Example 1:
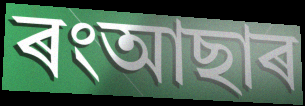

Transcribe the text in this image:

ৰংআছাৰ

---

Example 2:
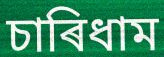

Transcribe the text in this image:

চাৰিধাম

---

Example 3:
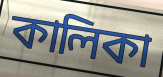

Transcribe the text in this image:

কালিকা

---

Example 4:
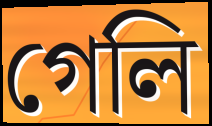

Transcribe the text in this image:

গেলি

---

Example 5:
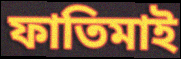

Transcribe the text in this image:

ফাতিমাই